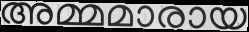
അമ്മമാരായ